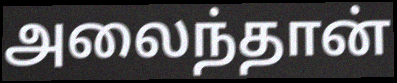
அலைந்தான்